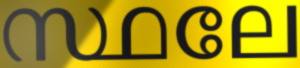
സ്ഥലേ